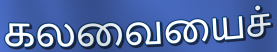
கலவையைச்